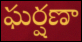
ఘర్షణా